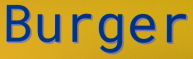
Burger